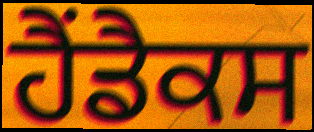
ਹੈਂਡੈਕਸ